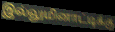
இல்லுமினாட்டிக்கு